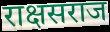
राक्षसराज